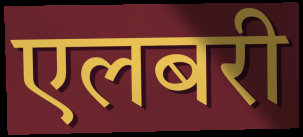
एलबरी